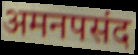
अमनपसंद